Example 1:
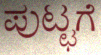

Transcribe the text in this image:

ಪುಟ್ಟಗೆ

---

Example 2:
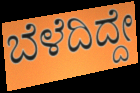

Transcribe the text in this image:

ಬೆಳೆದಿದ್ದೇ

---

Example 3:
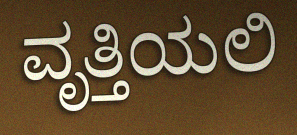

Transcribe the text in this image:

ವೃತ್ತಿಯಲಿ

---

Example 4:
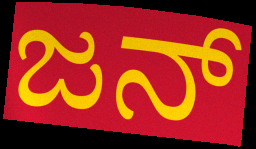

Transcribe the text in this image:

ಜನ್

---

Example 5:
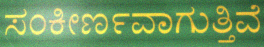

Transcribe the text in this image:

ಸಂಕೀರ್ಣವಾಗುತ್ತಿವೆ